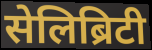
सेलिब्रिटी